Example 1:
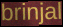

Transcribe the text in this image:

brinjal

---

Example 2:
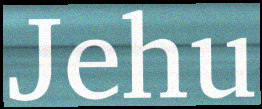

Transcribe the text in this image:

Jehu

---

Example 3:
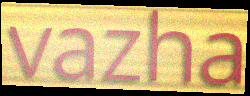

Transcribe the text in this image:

vazha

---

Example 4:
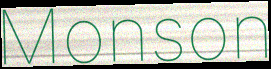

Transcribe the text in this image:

Monson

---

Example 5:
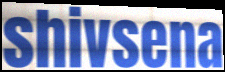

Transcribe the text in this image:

shivsena